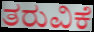
ತರುವಿಕೆ